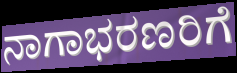
ನಾಗಾಭರಣರಿಗೆ